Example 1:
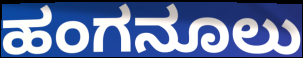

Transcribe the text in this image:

ಹಂಗನೂಲು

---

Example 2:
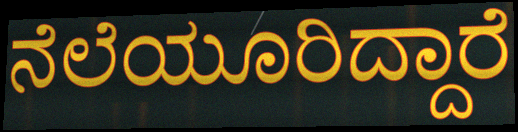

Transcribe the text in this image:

ನೆಲೆಯೂರಿದ್ದಾರೆ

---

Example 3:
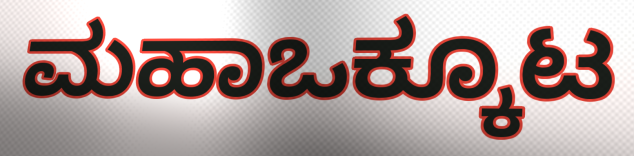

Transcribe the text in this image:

ಮಹಾಒಕ್ಕೂಟ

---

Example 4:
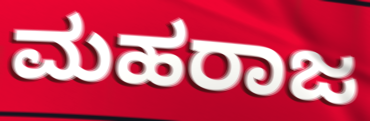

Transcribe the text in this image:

ಮಹರಾಜ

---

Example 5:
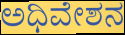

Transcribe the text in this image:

ಅಧಿವೇಶನ